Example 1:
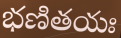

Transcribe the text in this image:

భణితయః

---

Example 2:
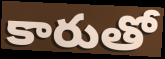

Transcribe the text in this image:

కారుతో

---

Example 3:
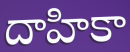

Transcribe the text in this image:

దాహికా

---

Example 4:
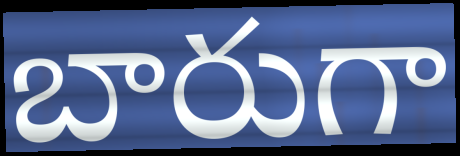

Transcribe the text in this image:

బారుగా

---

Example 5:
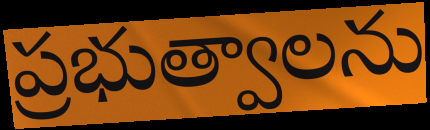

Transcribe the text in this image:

ప్రభుత్వాలను